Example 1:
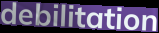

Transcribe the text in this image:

debilitation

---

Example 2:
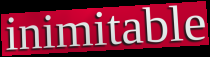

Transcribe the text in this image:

inimitable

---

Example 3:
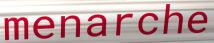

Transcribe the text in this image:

menarche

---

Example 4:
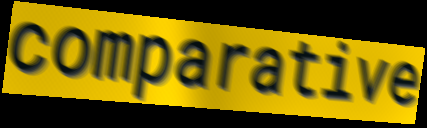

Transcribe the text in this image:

comparative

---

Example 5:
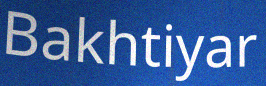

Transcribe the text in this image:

Bakhtiyar